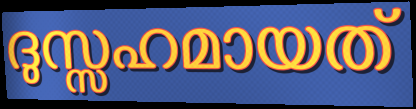
ദുസ്സഹമായത്